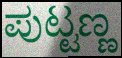
ಪುಟ್ಟಣ್ಣ